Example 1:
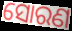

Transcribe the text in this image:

ସୋରଣ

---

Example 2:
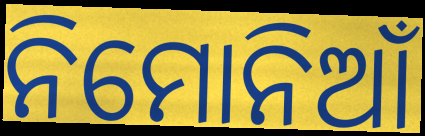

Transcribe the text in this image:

ନିମୋନିଆଁ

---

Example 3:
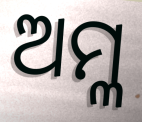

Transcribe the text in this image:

ଅମ୍ଳ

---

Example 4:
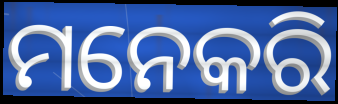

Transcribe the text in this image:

ମନେକରି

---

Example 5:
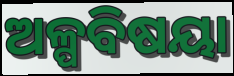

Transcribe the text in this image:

ଅଳ୍ପବିଷୟା